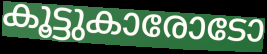
കൂട്ടുകാരോടോ